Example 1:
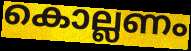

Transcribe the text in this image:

കൊല്ലണം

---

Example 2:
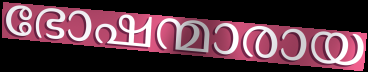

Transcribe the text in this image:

ഭോഷന്മാരായ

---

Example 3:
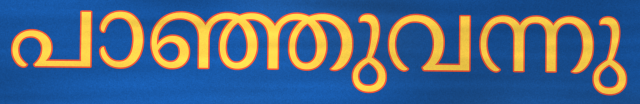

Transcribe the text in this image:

പാഞ്ഞുവന്നു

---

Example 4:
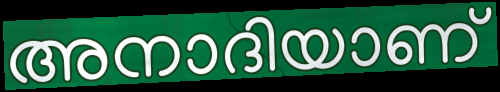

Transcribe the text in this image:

അനാദിയാണ്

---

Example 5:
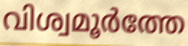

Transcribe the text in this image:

വിശ്വമൂർത്തേ